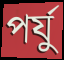
পর্যু